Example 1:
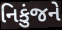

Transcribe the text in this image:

નિકુંજને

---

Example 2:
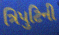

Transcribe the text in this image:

ત્રિપુટિની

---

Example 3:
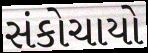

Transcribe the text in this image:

સંકોચાયો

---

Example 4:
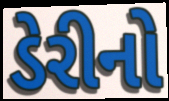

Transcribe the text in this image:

ડેરીનો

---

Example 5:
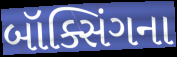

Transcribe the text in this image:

બૉક્સિંગના